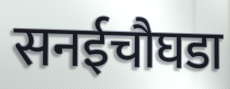
सनईचौघडा